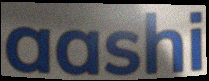
aashi